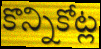
కొన్నికోట్ల